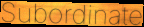
Subordinate